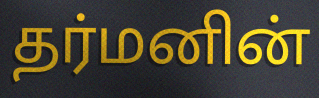
தர்மனின்